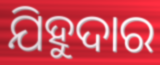
ଯିହୁଦାର